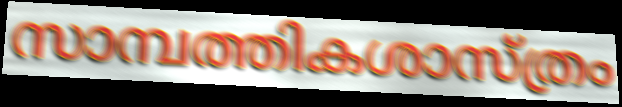
സാമ്പത്തികശാസ്ത്രം